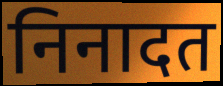
निनादत